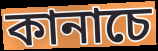
কানাচে